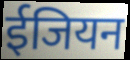
ईजियन